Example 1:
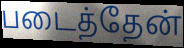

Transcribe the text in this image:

படைத்தேன்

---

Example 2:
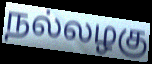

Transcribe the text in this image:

நல்லழகு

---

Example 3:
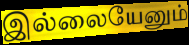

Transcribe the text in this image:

இல்லையேனும்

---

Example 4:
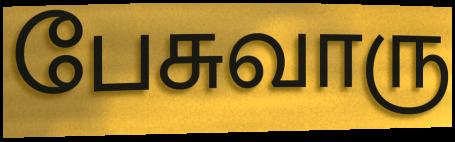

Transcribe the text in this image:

பேசுவாரு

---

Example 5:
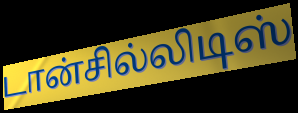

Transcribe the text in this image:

டான்சில்லிடிஸ்